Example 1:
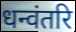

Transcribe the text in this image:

धन्वंतरि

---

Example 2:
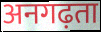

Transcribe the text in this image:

अनगढ़ता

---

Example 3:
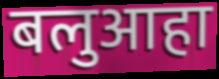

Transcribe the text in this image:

बलुआहा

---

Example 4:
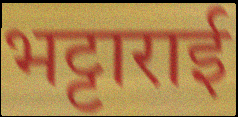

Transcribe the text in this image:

भट्टाराई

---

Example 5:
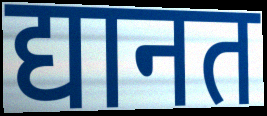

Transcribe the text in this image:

द्यानत